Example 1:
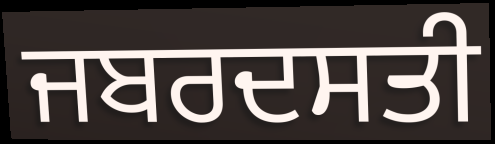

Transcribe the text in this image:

ਜਬਰਦਸਤੀ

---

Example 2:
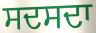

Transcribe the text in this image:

ਸਦਸਦਾ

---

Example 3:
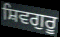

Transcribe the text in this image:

ਸ਼ਿਵਗੁਰੂ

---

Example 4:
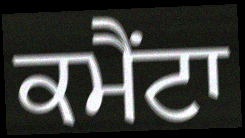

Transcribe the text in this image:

ਕਮੈਂਟਾ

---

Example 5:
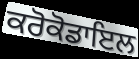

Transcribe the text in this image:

ਕਰੋਕੋਡਾਇਲ